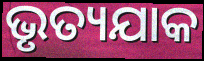
ଭୃତ୍ୟଯାକ